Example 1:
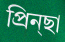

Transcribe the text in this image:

প্রিন্ছা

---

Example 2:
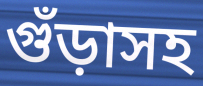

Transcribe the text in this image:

গুঁড়াসহ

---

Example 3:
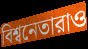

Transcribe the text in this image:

বিশ্বনেতারাও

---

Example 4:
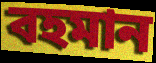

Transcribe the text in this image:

বহমান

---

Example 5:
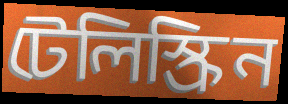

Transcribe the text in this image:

টেলিস্ক্রিন